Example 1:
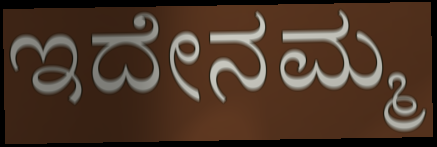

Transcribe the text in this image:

ಇದೇನಮ್ಮ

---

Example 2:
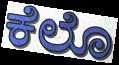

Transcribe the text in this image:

ಕೆಲೊ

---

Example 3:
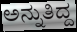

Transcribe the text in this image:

ಅನ್ನುತಿದ್ದ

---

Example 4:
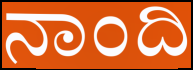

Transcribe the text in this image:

ನಾಂದಿ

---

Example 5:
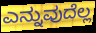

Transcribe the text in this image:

ಎನ್ನುವುದೆಲ್ಲ